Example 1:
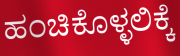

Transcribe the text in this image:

ಹಂಚಿಕೊಳ್ಳಲಿಕ್ಕೆ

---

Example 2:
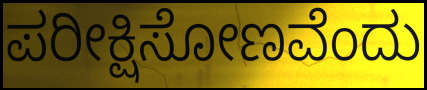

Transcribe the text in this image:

ಪರೀಕ್ಷಿಸೋಣವೆಂದು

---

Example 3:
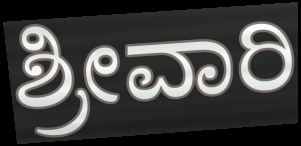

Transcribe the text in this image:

ಶ್ರೀವಾರಿ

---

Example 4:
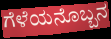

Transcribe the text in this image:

ಗೆಳೆಯನೊಬ್ಬನ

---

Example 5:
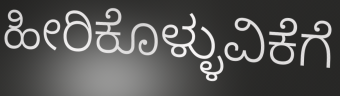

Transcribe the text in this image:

ಹೀರಿಕೊಳ್ಳುವಿಕೆಗೆ